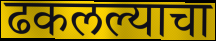
ढकलल्याचा